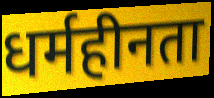
धर्महीनता